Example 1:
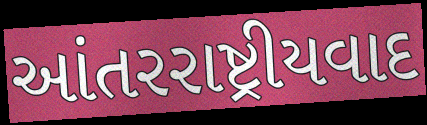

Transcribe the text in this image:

આંતરરાષ્ટ્રીયવાદ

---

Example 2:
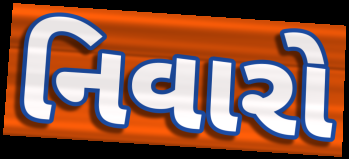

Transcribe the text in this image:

નિવારો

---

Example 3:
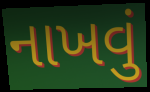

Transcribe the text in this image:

નાખવું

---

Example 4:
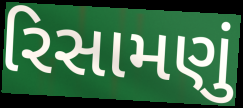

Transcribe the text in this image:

રિસામણું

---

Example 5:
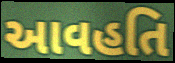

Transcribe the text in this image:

આવહતિ